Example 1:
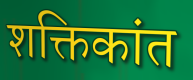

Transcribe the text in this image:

शक्तिकांत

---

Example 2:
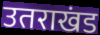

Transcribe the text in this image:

उतराखंड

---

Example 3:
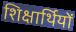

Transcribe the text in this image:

शिक्षार्थियों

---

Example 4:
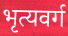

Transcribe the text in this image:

भृत्यवर्ग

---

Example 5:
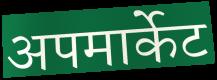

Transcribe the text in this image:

अपमार्केट